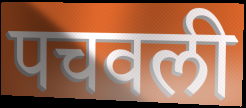
पचवली